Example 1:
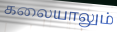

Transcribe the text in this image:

கலையாலும்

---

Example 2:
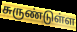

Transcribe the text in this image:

சுருண்டுள்ள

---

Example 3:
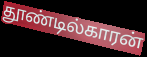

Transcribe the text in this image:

தூண்டில்காரன்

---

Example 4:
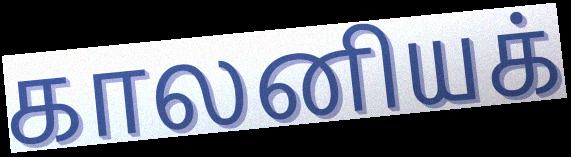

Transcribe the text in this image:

காலனியக்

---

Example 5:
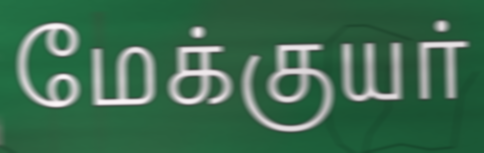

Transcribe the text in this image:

மேக்குயர்